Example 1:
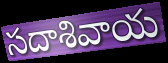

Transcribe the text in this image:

సదాశివాయ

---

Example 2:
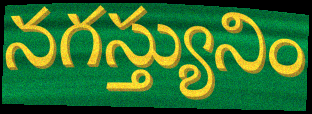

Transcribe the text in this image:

నగస్త్యునిం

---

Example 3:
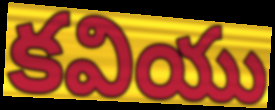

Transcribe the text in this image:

కవియు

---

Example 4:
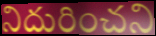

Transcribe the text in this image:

నిదురించని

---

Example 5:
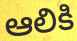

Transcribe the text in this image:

ఆలికి